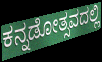
ಕನ್ನಡೋತ್ಸವದಲ್ಲಿ